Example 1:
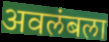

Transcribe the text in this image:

अवलंबला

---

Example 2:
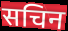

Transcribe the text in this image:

सचिन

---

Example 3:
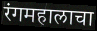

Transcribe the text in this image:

रंगमहालाचा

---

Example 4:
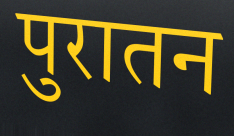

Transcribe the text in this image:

पुरातन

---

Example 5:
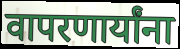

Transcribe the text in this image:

वापरणार्यांना